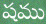
షము